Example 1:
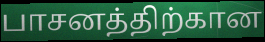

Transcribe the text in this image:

பாசனத்திற்கான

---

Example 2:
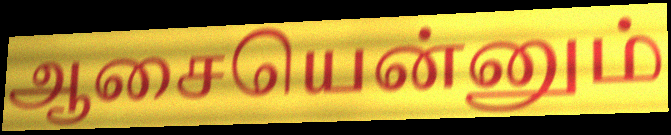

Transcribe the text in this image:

ஆசையென்னும்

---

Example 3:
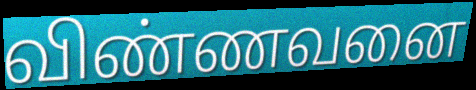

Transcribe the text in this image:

விண்ணவனை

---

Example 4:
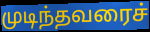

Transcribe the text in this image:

முடிந்தவரைச்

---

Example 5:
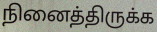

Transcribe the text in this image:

நினைத்திருக்க